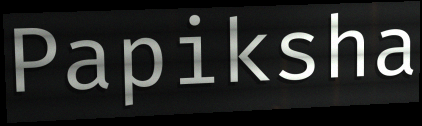
Papiksha